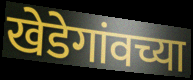
खेडेगांवच्या